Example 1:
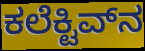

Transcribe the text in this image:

ಕಲೆಕ್ಟಿವ್‌ನ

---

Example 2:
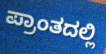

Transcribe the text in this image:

ಪ್ರಾಂತದಲ್ಲಿ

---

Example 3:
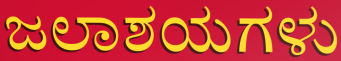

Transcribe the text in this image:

ಜಲಾಶಯಗಳು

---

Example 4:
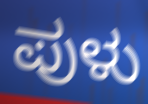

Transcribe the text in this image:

ಪುಳು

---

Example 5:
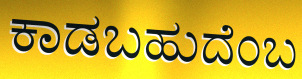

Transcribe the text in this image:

ಕಾಡಬಹುದೆಂಬ